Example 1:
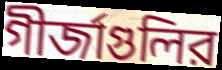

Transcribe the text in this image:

গীর্জাগুলির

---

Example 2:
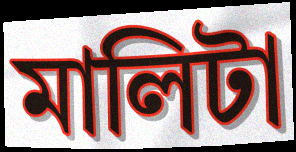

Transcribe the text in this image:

মালিটা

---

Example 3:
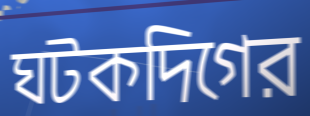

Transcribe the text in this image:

ঘটকদিগের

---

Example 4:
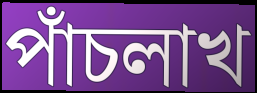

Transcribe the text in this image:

পাঁচলাখ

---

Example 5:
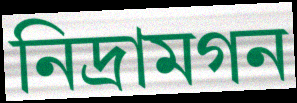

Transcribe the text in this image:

নিদ্রামগন